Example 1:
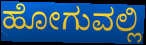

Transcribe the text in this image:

ಹೋಗುವಲ್ಲಿ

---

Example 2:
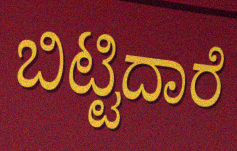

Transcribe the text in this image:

ಬಿಟ್ಟಿದಾರೆ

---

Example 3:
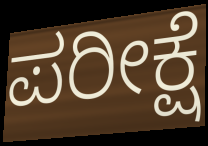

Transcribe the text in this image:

ಪರೀಕ್ಷೆ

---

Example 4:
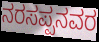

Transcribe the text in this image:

ನರಸಪ್ಪನವರ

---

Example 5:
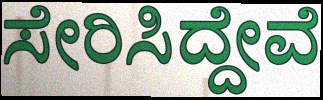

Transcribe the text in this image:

ಸೇರಿಸಿದ್ದೇವೆ